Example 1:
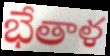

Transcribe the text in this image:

భేతాళ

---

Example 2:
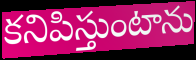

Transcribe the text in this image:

కనిపిస్తుంటాను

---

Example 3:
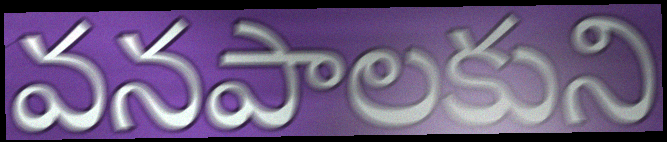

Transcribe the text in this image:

వనపాలకుని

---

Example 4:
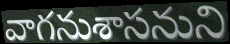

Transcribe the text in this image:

వాగనుశాసనుని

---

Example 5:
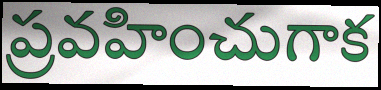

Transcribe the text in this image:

ప్రవహించుగాక